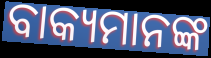
ବାକ୍ୟମାନଙ୍କ